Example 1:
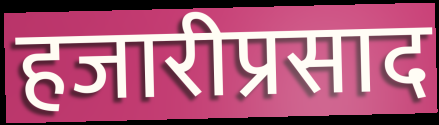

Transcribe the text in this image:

हजारीप्रसाद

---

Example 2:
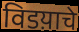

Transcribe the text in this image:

विडय़ाचे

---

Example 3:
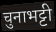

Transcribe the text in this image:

चुनाभट्टी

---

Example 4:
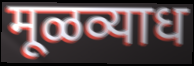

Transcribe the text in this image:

मूळव्याध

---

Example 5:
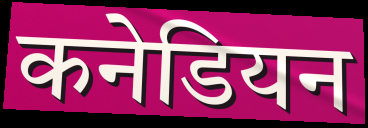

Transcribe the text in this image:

कनेडियन